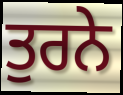
ਤੁਰਨੇ